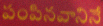
పంపినవానినే